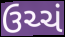
ઉચ્ચં